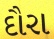
દૌરા